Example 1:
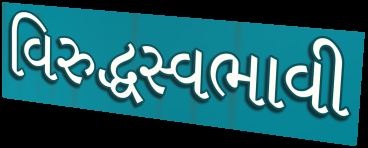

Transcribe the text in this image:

વિરુદ્ધસ્વભાવી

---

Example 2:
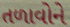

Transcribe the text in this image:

તળાવોને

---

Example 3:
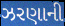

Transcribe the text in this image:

ઝરણાની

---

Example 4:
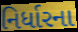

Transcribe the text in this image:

નિર્ધારના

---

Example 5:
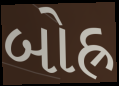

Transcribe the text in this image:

બોહ્ર